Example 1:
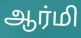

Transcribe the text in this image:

ஆர்மி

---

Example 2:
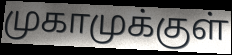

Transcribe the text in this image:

முகாமுக்குள்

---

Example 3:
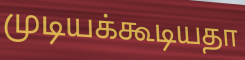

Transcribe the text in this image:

முடியக்கூடியதா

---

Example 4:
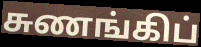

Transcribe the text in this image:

சுணங்கிப்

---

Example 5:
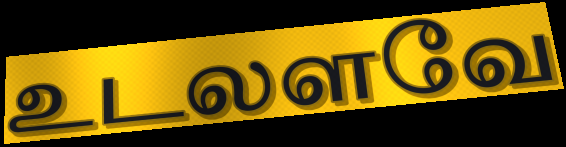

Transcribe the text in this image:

உடலளவே